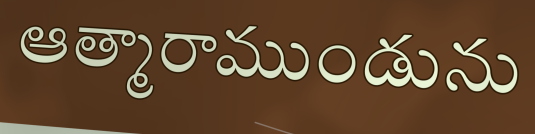
ఆత్మారాముండును